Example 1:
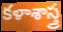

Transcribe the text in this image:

కళాశాస్త్ర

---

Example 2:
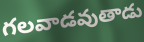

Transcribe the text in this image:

గలవాడవుతాడు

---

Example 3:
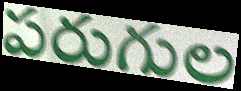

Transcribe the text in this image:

పరుగుల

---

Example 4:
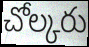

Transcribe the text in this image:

చోల్కరు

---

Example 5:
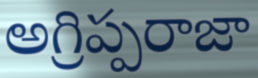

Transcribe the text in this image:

అగ్రిప్పరాజా